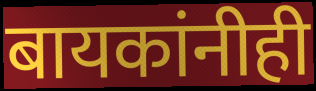
बायकांनीही